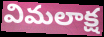
విమలాక్ష